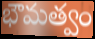
భౌమత్వం